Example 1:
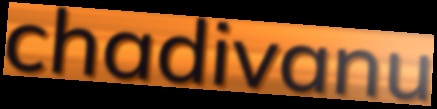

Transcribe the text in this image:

chadivanu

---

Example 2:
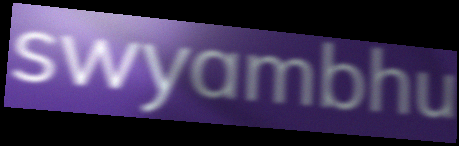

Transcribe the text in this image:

swyambhu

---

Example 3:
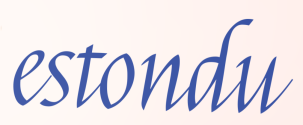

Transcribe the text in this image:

estondu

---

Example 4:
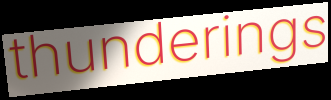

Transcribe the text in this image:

thunderings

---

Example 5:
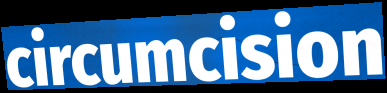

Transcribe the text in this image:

circumcision